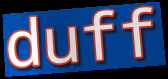
duff